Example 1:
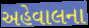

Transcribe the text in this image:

અહેવાલના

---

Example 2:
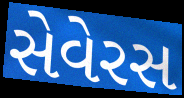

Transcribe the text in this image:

સેવેરસ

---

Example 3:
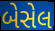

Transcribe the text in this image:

બેસેલ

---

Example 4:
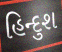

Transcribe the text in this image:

હિન્દુશ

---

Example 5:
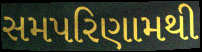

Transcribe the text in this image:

સમપરિણામથી